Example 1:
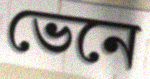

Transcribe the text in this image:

ভেনে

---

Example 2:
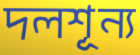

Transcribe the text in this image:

দলশূন্য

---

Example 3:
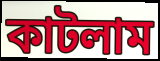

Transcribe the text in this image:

কাটলাম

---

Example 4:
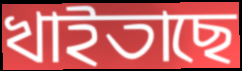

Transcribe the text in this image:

খাইতাছে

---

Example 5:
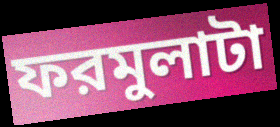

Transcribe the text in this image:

ফরমুলাটা